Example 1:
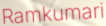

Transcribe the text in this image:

Ramkumari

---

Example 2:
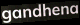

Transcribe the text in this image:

gandhena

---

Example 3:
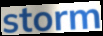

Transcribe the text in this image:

storm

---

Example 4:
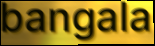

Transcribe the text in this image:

bangala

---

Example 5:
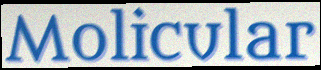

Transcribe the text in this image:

Molicular